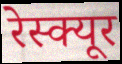
रेस्क्यूर